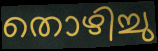
തൊഴിച്ചു